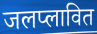
जलप्लावित